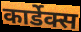
कार्डेक्स